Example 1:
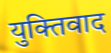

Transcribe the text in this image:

युक्‍तिवाद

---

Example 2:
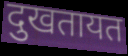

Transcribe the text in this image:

दुखतायत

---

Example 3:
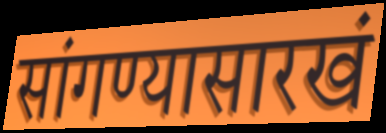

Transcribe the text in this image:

सांगण्यासारखं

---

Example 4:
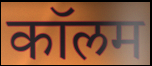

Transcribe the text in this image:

कॉलम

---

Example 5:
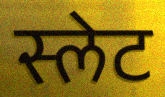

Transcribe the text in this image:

स्लेट